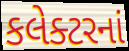
કલેક્ટરનાં